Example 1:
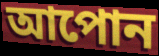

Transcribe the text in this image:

আপোন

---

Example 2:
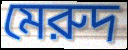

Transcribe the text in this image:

মেরুদ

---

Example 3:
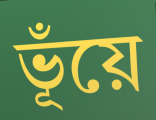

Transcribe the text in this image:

ভূঁয়ে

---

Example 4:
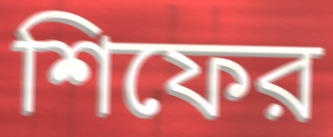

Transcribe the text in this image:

শিফের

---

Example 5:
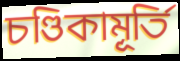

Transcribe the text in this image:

চণ্ডিকামূর্তি